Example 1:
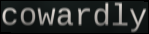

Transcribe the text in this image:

cowardly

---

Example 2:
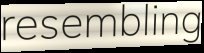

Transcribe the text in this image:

resembling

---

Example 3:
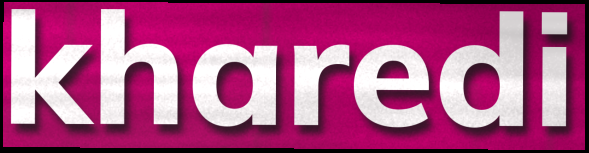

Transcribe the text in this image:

kharedi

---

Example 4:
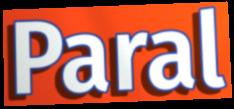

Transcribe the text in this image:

Paral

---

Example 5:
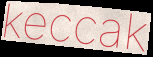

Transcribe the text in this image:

keccak